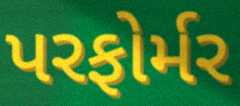
પરફોર્મર